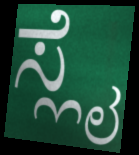
ಸ್ಲೈ